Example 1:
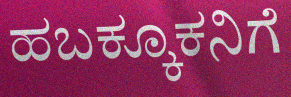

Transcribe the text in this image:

ಹಬಕ್ಕೂಕನಿಗೆ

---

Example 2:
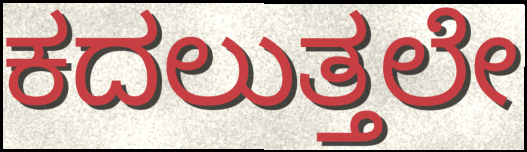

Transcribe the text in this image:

ಕದಲುತ್ತಲೇ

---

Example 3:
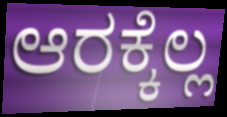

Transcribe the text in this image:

ಆರಕ್ಕೆಲ್ಲ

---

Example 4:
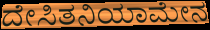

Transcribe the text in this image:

ದೇಸಿತನಿಯಾಮೇನ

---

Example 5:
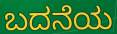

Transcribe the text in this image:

ಬದನೆಯ